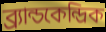
ব্র্যান্ডকেন্দ্রিক